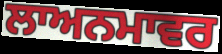
ਲਾਅਨਮਾਵਰ